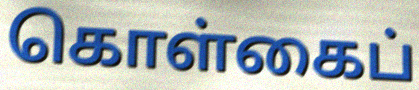
கொள்கைப்